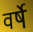
वर्षे